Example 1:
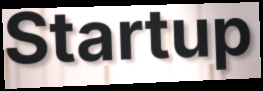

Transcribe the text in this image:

Startup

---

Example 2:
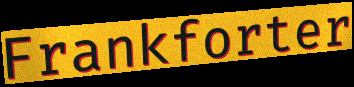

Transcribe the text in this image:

Frankforter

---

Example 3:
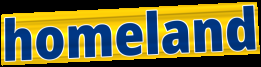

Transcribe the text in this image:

homeland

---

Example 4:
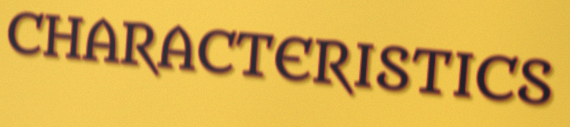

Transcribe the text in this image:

CHARACTERISTICS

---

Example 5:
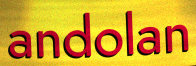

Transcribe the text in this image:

andolan